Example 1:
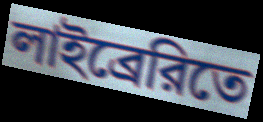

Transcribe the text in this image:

লাইব্রেরিতে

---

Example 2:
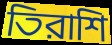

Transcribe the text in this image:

তিরাশি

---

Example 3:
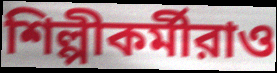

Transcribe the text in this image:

শিল্পীকর্মীরাও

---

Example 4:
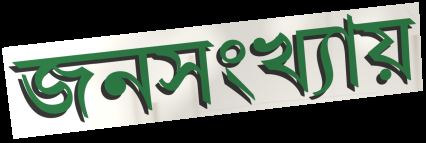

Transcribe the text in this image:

জনসংখ্যায়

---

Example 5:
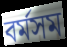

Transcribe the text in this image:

বর্মসম